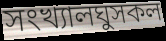
সংখ্যালঘুসকল